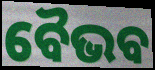
ବୈଭବ